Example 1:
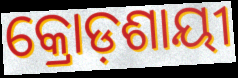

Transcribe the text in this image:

କ୍ରୋଡ଼ଶାୟୀ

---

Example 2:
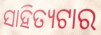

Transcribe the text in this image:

ସାହିତ୍ୟଟାର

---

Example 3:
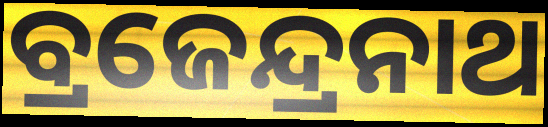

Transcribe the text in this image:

ବ୍ରଜେନ୍ଦ୍ରନାଥ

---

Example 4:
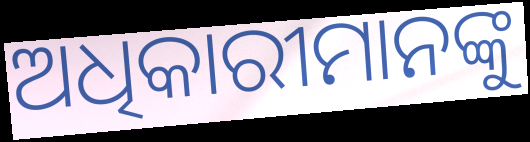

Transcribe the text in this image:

ଅଧିକାରୀମାନଙ୍କୁ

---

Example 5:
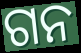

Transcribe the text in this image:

ଗନ